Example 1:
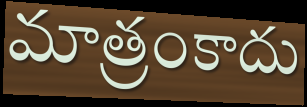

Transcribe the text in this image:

మాత్రంకాదు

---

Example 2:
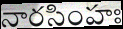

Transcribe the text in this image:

నారసింహః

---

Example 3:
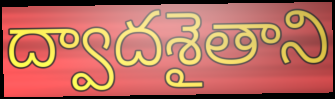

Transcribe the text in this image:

ద్వాదశైతాని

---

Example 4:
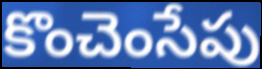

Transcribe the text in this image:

కొంచెంసేపు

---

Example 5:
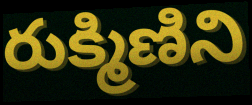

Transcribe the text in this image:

రుక్మిణిని